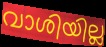
വാശിയില്ല